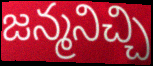
జన్మనిచ్చి